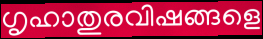
ഗൃഹാതുരവിഷങ്ങളെ